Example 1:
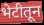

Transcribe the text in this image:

भेटीतून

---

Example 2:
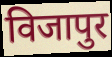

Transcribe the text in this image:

विजापुर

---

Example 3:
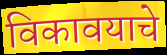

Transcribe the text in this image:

विकावयाचे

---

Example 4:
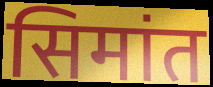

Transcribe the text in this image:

सिमांत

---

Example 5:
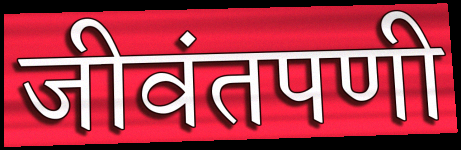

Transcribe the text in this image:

जीवंतपणी